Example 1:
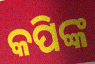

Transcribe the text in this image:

କପିଙ୍କ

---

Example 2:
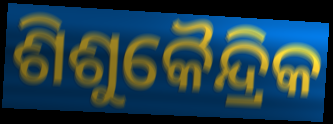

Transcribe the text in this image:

ଶିଶୁକୈନ୍ଦ୍ରିକ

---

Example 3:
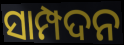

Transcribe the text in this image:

ସାମ୍ପଦନ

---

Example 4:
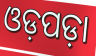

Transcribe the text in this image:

ଓଡ଼ପଡ଼ା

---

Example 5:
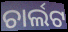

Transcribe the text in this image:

ଚାର୍ଲଟ